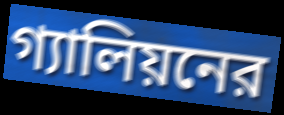
গ্যালিয়নের